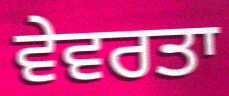
ਵੇਵਰਤਾ